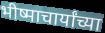
भीष्माचार्यांच्या